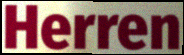
Herren